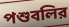
পশুবলির